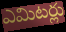
ఎమిటర్లు